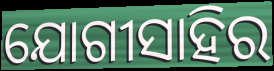
ଯୋଗୀସାହିର